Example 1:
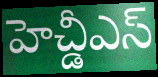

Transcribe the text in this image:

హెచ్డీఎస్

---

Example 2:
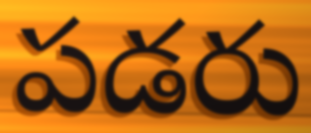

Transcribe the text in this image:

పడరు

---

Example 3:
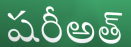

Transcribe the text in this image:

షరీఅత్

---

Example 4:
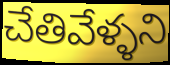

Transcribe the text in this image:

చేతివేళ్ళని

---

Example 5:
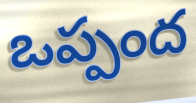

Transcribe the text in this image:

ఒప్పంద